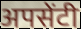
अपसेंटी